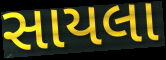
સાયલા